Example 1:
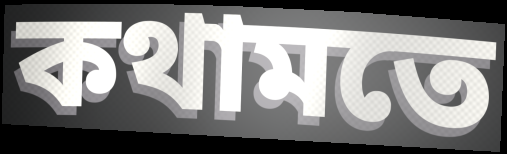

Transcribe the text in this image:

কথামতে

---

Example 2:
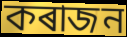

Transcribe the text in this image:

কৰাজন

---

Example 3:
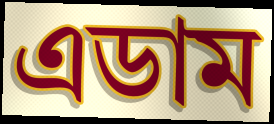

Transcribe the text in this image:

এডাম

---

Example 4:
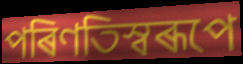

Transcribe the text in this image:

পৰিণতিস্বৰূপে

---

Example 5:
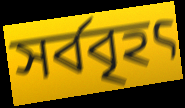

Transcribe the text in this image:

সৰ্ববৃহৎ